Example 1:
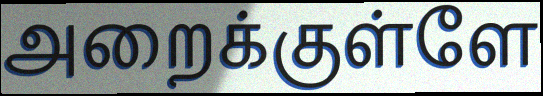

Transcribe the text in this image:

அறைக்குள்ளே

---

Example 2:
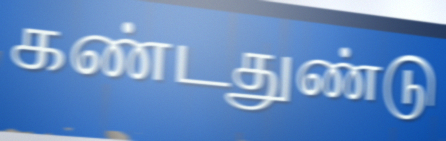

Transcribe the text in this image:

கண்டதுண்டு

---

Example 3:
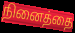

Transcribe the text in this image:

நினைத்தை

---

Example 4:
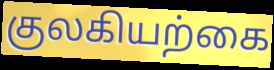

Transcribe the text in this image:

குலகியற்கை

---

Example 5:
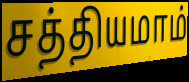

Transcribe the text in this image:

சத்தியமாம்